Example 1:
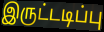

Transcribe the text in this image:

இருட்டடிப்பு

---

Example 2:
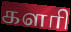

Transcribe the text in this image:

களரி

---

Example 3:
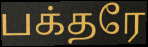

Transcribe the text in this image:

பக்தரே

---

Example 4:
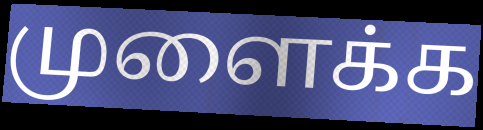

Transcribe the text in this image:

முளைக்க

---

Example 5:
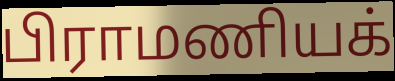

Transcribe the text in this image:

பிராமணியக்